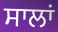
ਸਾਲਾਂ